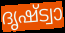
ദൃഷ്ട്വാ